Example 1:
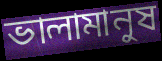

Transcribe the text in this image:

ভালামানুষ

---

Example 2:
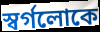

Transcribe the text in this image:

স্বর্গলোকে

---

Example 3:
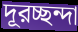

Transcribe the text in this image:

দূরচ্ছন্দা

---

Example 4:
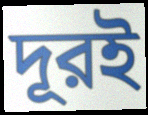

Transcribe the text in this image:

দূরই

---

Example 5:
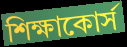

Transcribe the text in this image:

শিক্ষাকোর্স